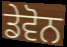
ਡੇਵੋਨ